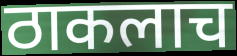
ठाकलाच